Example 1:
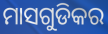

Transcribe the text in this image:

ମାସଗୁଡିକର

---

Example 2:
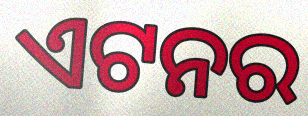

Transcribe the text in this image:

ଏଟନର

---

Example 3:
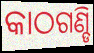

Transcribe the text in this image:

କାଠଗଣ୍ଡି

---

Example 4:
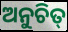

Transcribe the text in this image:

ଅନୁଚିତ୍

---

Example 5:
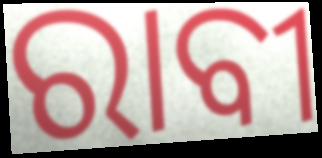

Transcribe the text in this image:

ରାବୀ